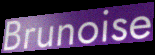
Brunoise